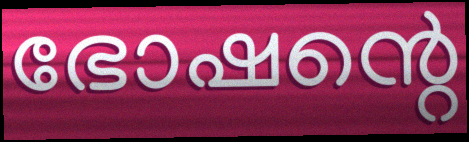
ഭോഷന്റെ